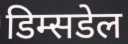
डिम्सडेल